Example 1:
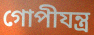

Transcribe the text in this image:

গোপীযন্ত্র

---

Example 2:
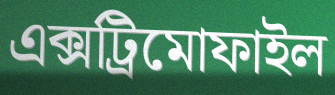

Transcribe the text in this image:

এক্সট্রিমোফাইল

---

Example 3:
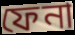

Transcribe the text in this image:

ফেনা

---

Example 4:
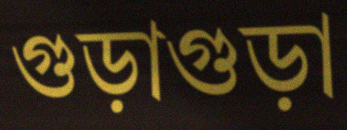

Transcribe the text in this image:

গুড়াগুড়া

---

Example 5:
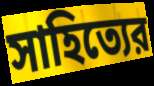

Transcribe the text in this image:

সাহিত্যের